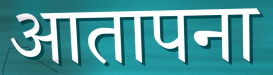
आतापना